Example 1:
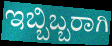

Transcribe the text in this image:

ಇಬ್ಬಿಬ್ಬರಾಗಿ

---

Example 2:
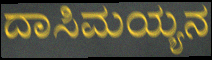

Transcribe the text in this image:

ದಾಸಿಮಯ್ಯನ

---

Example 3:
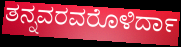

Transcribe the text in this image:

ತನ್ನವರವರೊಳಿರ್ದಾ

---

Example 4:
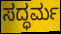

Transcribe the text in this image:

ಸದ್ಧರ್ಮ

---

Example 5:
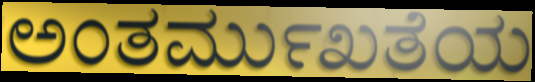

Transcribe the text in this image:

ಅಂತರ್ಮುಖತೆಯ